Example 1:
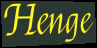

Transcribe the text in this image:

Henge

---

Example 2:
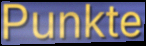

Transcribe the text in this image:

Punkte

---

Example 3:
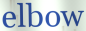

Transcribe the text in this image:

elbow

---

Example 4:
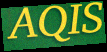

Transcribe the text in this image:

AQIS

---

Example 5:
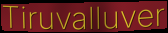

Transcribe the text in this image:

Tiruvalluver